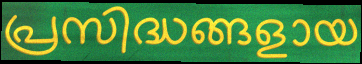
പ്രസിദ്ധങ്ങളായ